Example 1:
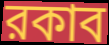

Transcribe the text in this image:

রকাব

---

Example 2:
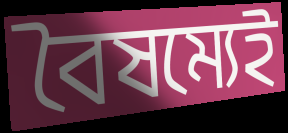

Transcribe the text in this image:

বৈষম্যেই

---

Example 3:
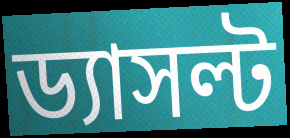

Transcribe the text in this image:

ড্যাসল্ট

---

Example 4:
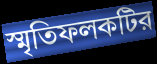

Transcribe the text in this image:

স্মৃতিফলকটির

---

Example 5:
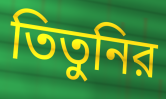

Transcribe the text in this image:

তিতুনির